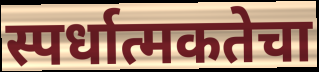
स्पर्धात्मकतेचा